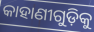
କାହାଣୀଗୁଡ଼ିକୁ